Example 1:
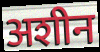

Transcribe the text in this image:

अशीन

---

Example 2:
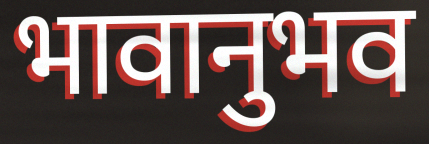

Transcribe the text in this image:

भावानुभव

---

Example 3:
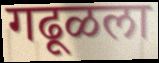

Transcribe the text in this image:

गढूळला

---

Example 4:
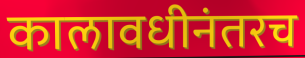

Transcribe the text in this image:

कालावधीनंतरच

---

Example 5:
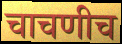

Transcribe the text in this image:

चाचणीच